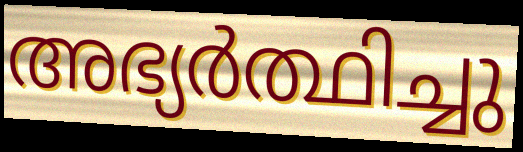
അഭ്യർത്ഥിച്ചു